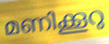
മണിക്കൂറു